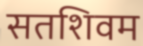
सतशिवम